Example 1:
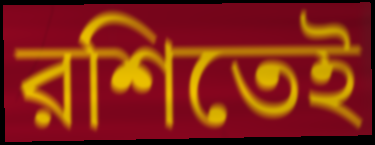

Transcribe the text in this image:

রশিতেই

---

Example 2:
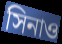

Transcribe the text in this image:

সিনাও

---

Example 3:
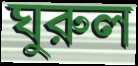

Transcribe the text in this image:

ঘুরুল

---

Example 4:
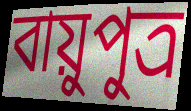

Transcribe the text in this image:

বায়ুপুত্র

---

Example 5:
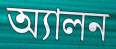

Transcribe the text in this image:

অ্যালন